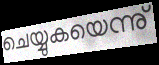
ചെയ്യുകയെന്നു്